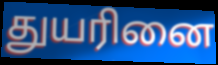
துயரினை